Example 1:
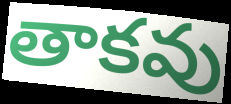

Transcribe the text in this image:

తాకవు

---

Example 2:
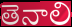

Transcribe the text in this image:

తెనాలి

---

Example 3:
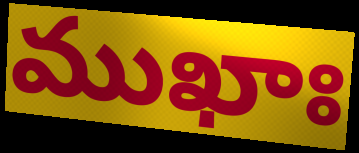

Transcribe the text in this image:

ముఖాః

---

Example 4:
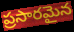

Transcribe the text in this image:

ప్రసారమైన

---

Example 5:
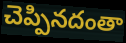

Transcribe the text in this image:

చెప్పినదంతా